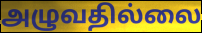
அழுவதில்லை